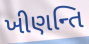
ખીણન્તિ